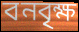
বনবৃক্ষ